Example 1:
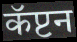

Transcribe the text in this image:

कॅप्टन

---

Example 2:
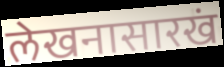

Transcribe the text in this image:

लेखनासारखं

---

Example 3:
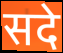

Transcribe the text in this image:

सदे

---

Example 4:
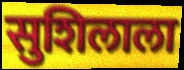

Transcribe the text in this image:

सुशिलाला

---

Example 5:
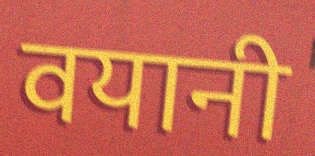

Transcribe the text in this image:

वयानी